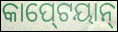
କାପ୍‍ଟେୟାନ୍